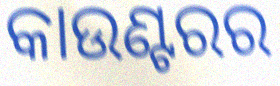
କାଉଣ୍ଟରର